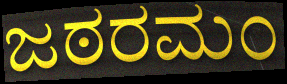
ಜಠರಮಂ